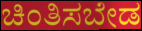
ಚಿಂತಿಸಬೇಡ